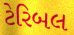
ટેરિબલ